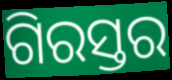
ଗିରସ୍ତର